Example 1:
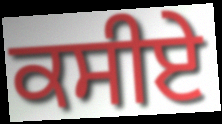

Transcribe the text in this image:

ਕਸੀਏ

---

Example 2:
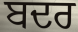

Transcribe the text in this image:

ਬਦਰ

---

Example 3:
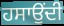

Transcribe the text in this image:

ਹਸਾਉਂਦੀ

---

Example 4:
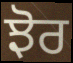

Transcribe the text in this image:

ਝੋਰ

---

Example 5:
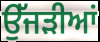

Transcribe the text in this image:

ਉੱਜੜੀਆਂ